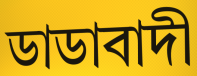
ডাডাবাদী